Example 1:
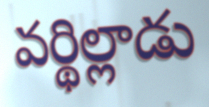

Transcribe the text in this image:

వర్థిల్లాడు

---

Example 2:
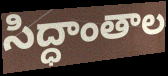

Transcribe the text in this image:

సిద్ధాంతాల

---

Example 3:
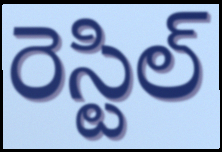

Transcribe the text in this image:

రెస్టిల్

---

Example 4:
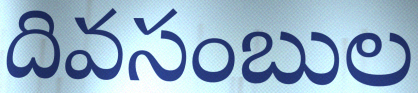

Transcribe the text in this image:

దివసంబుల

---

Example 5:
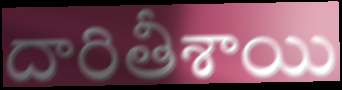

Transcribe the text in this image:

దారితీశాయి